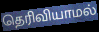
தெரிவியாமல்